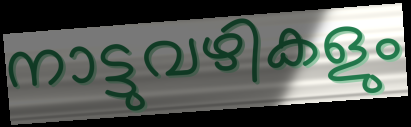
നാട്ടുവഴികളും